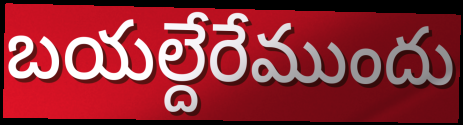
బయల్దేరేముందు